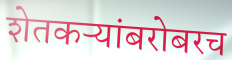
शेतकऱ्यांबरोबरच